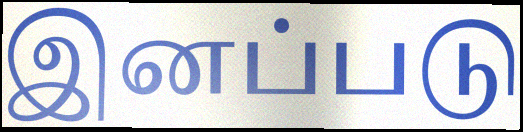
இனப்படு